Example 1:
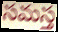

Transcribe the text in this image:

సమస్త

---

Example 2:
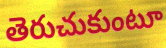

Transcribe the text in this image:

తెరుచుకుంటూ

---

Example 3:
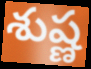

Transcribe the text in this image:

శుష్ణ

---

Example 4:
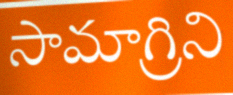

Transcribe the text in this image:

సామాగ్రిని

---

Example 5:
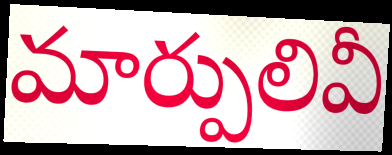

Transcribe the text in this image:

మార్పులివీ